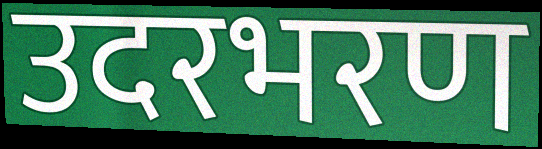
उदरभरण